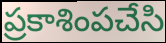
ప్రకాశింపచేసి